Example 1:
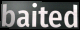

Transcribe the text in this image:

baited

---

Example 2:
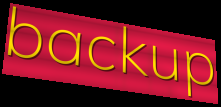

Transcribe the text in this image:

backup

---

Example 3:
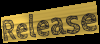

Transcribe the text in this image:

Release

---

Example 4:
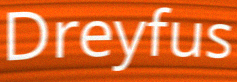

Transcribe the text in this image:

Dreyfus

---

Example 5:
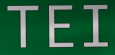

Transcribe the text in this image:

TEI